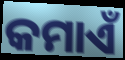
କମାଏଁ